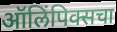
ऑलिंपिक्सचा